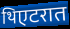
थिएटरात